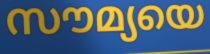
സൗമ്യയെ